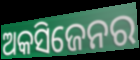
ଅକସିଜେନର